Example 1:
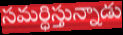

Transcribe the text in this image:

సమర్ధిస్తున్నాడు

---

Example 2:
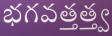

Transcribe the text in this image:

భగవత్తత్త్వ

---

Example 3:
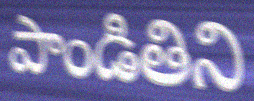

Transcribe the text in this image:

పాండితిని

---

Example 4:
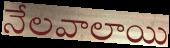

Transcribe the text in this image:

నేలవాలాయి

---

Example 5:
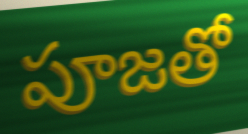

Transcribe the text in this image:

పూజతో